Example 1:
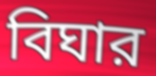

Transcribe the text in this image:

বিঘার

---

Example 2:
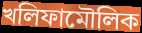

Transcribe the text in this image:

খলিফামৌলিক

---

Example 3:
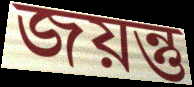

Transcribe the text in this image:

জয়ন্তু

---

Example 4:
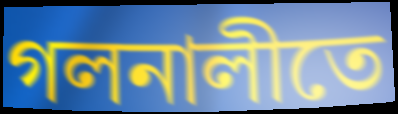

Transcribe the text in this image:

গলনালীতে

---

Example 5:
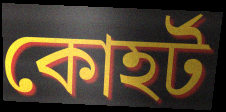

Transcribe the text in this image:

কোহর্ট